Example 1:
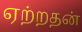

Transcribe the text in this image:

ஏற்றதன்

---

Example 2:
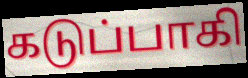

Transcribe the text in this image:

கடுப்பாகி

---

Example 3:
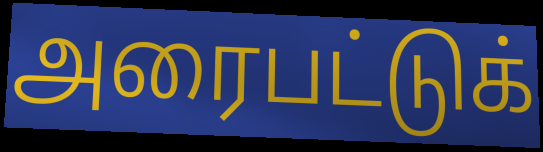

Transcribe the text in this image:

அரைபட்டுக்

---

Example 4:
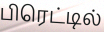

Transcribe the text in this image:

பிரெட்டில்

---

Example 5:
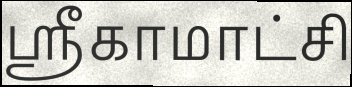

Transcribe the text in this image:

ஸ்ரீகாமாட்சி